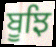
ਬੂਝਿ